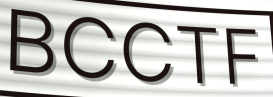
BCCTF